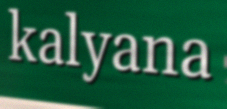
kalyana